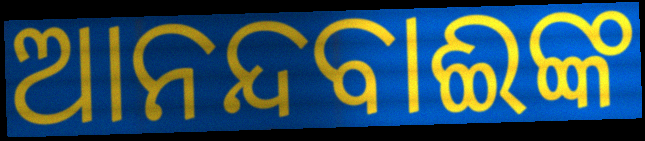
ଆନନ୍ଦବାଈଙ୍କ